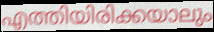
എത്തിയിരിക്കയാലും